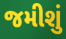
જમીશું